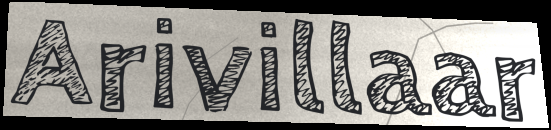
Arivillaar